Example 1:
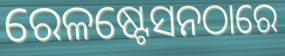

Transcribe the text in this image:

ରେଳଷ୍ଟେସନଠାରେ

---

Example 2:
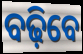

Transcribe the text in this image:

ବଢ଼ିବେ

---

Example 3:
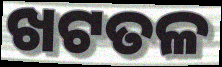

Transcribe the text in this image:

ଖଟତଳ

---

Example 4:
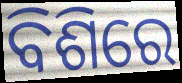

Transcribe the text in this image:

ବିଶିରେ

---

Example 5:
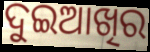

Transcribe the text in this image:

ଦୁଇଆଖିର